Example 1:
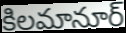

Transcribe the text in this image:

కిలమానూర్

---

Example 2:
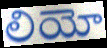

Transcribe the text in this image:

లియో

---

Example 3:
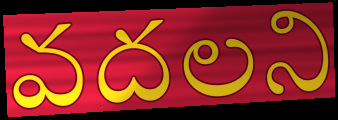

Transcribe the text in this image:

వదలని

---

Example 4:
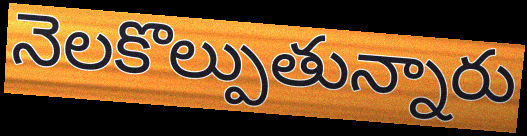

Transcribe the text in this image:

నెలకొల్పుతున్నారు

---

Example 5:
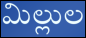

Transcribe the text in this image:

మిల్లుల